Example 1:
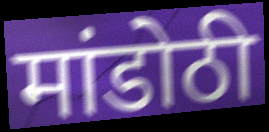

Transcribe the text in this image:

मांडोठी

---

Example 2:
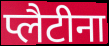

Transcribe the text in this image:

प्लैटीना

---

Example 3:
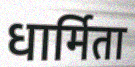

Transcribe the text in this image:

धार्मिता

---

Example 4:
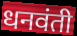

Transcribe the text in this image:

धनवंती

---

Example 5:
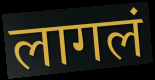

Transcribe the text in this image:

लागलं